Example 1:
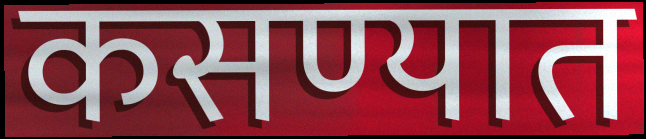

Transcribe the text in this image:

कसण्यात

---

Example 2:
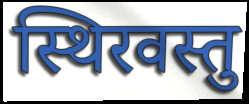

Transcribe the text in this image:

स्थिरवस्तु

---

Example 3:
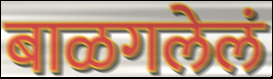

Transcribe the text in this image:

बाळगलेलं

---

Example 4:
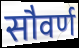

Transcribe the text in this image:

सौवर्ण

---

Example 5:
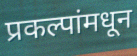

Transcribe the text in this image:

प्रकल्पांमधून